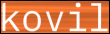
kovil